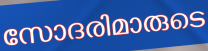
സോദരിമാരുടെ